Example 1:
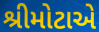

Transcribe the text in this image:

શ્રીમોટાએ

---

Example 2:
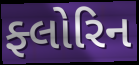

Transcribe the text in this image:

ફ્લોરિન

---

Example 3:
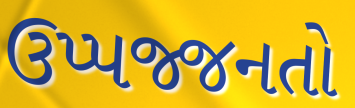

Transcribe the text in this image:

ઉપ્પજ્જનતો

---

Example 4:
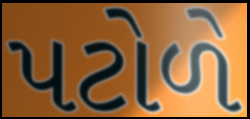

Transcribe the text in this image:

પટોળે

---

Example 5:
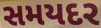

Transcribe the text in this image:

સમયદર